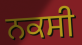
ਨਕਸੀ